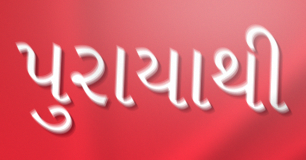
પુરાયાથી